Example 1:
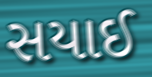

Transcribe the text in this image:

સયાઈ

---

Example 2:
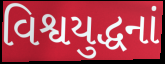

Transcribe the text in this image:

વિશ્વયુદ્ધનાં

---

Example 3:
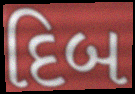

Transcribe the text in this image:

દિબ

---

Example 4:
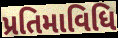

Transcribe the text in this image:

પ્રતિમાવિધિ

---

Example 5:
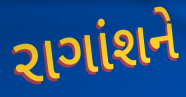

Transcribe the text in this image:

રાગાંશને